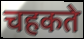
चहकते